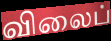
விலைப்